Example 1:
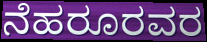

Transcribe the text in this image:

ನೆಹರೂರವರ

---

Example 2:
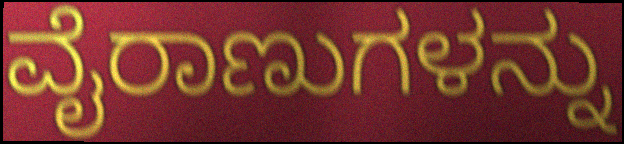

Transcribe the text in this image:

ವೈರಾಣುಗಳನ್ನು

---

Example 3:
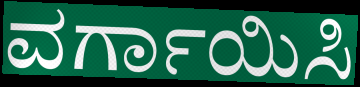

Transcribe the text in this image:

ವರ್ಗಾಯಿಸಿ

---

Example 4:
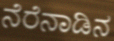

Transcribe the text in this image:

ನೆರೆನಾಡಿನ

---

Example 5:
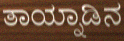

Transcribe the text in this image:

ತಾಯ್ನಾಡಿನ